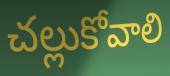
చల్లుకోవాలి